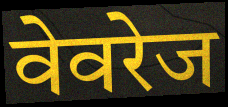
वेवरेज